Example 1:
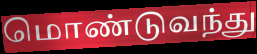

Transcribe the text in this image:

மொண்டுவந்து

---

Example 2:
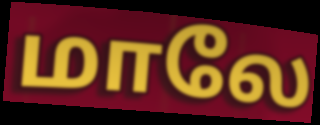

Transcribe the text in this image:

மாலே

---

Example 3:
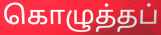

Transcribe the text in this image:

கொழுத்தப்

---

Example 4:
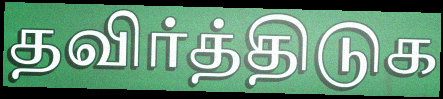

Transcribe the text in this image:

தவிர்த்திடுக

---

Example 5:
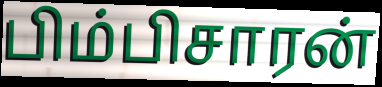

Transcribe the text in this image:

பிம்பிசாரன்